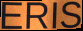
ERIS